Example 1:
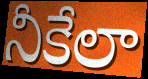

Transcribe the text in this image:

నీకేలా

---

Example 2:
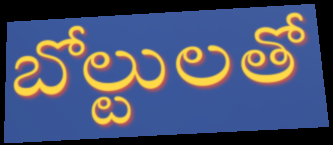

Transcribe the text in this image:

బోల్టులతో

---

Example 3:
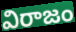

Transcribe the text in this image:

విరాజం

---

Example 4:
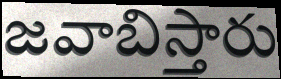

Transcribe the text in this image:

జవాబిస్తారు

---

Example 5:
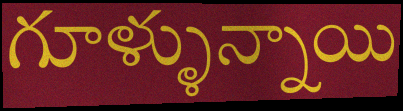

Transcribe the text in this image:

గూళ్ళున్నాయి